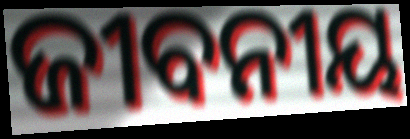
ଜୀବନୀୟ